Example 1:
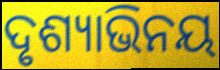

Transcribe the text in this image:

ଦୃଶ୍ୟାଭିନୟ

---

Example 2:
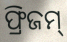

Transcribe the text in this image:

ଫ୍ରିଜମ୍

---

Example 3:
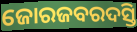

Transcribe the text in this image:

ଜୋରଜବରଦସ୍ତି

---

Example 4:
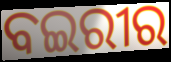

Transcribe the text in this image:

ବଇରୀର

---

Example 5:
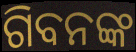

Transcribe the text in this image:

ଗିବନଙ୍କ